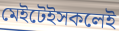
মেইটেইসকলেই